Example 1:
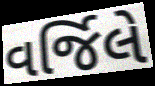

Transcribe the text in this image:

વર્જિલે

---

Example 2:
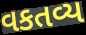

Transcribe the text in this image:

વકતવ્ય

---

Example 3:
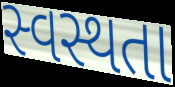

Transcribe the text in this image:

સ્વસ્થતા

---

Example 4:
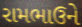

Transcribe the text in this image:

રામભાઉને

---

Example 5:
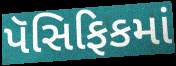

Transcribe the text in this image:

પૅસિફિકમાં